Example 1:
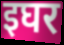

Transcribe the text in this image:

इघर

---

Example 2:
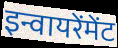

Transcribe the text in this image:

इन्वायरेंमेंट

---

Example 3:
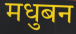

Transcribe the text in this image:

मधुबन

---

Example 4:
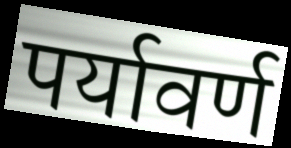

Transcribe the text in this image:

पर्यावर्ण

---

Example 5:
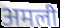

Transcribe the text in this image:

अमली